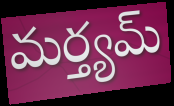
మర్త్యమ్